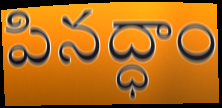
పినద్ధాం